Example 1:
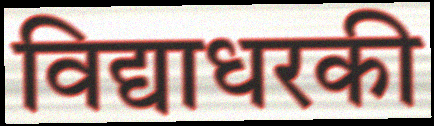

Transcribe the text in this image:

विद्याधरकी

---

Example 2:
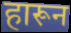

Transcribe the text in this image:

हारून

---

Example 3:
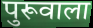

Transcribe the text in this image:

पुरूवाला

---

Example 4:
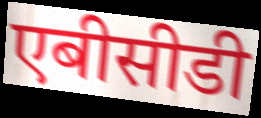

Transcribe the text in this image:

एबीसीडी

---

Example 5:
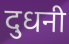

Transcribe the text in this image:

दुधनी